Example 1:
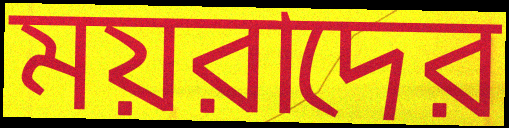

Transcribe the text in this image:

ময়রাদের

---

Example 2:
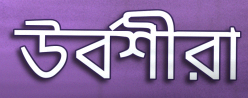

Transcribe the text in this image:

উর্বশীরা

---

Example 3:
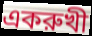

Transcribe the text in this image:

একরুখী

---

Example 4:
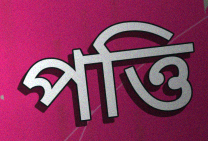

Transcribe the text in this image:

পত্তি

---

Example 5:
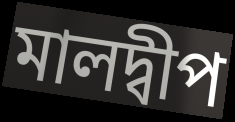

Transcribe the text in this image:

মালদ্বীপ